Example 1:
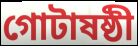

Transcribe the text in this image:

গোটাষষ্ঠী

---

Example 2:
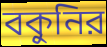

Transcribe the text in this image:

বকুনির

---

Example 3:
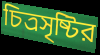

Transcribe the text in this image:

চিত্রসৃষ্টির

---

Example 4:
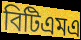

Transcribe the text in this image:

বিটিএমএ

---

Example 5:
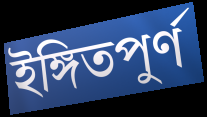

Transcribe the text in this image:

ইঙ্গিতপুর্ণ